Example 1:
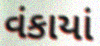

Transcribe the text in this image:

વંકાયાં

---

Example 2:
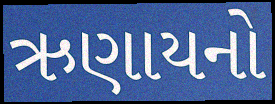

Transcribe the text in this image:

ઋણાયનો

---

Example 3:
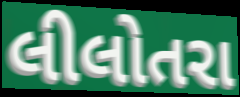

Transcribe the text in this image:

લીલોતરા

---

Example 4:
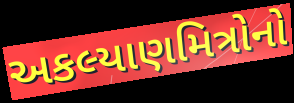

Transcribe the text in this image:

અકલ્યાણમિત્રોનો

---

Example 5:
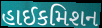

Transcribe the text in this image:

હાઈકમિશન